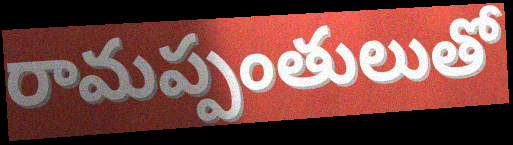
రామప్పంతులుతో